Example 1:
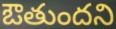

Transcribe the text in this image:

ఔతుందని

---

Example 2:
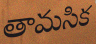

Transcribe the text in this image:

తామసిక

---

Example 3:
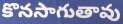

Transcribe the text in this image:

కొనసాగుతావు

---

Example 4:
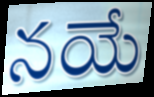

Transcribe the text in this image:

నయే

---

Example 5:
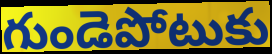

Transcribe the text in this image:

గుండెపోటుకు